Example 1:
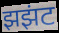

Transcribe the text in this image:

झझंट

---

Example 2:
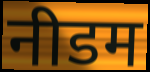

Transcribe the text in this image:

नीडम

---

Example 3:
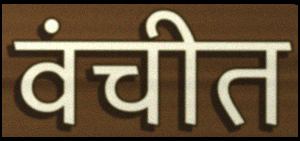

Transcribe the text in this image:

वंचीत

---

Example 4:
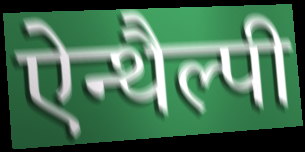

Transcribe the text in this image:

ऐन्थैल्पी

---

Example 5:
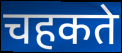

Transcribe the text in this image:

चहकते